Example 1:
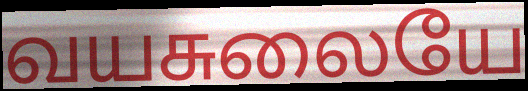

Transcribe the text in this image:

வயசுலையே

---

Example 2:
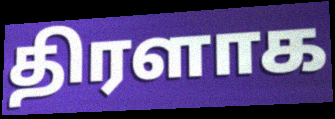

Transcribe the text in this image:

திரளாக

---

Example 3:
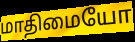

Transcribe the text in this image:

மாதிமையோ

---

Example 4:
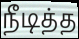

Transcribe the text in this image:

நீடித்த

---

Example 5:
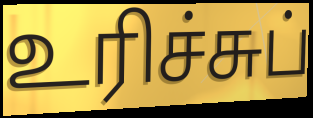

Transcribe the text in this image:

உரிச்சுப்